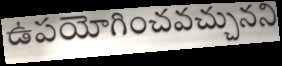
ఉపయోగించవచ్చునని